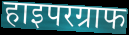
हाइपरग्राफ